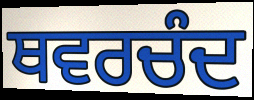
ਥਵਰਚੰਦ